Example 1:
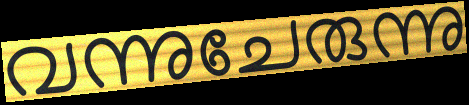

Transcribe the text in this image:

വന്നുചേരുന്നു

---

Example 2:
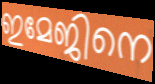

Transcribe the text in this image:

ഇമേജിനെ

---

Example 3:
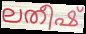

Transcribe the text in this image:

ലതീഷ്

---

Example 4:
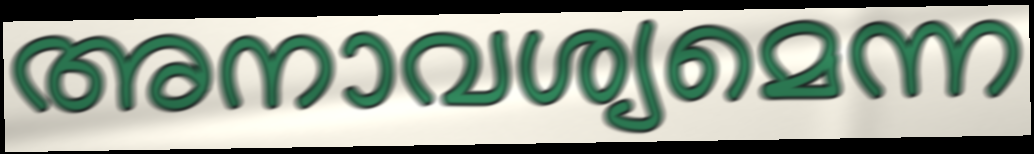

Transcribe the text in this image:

അനാവശ്യമെന്ന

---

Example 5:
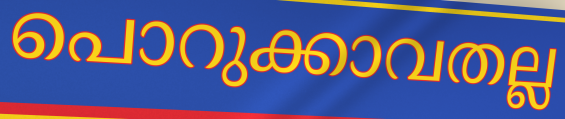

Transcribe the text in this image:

പൊറുക്കാവതല്ല